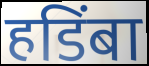
हडिंबा